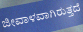
ಜೀವಾಳವಾಗಿರುತ್ತದೆ